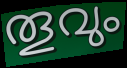
തൂവും